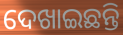
ଦେଖାଇଛନ୍ତି